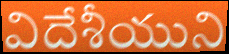
విదేశీయుని